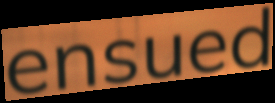
ensued